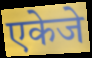
एकेजे